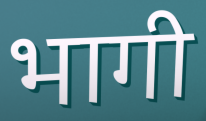
भागी